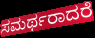
ಸಮರ್ಥರಾದರೆ